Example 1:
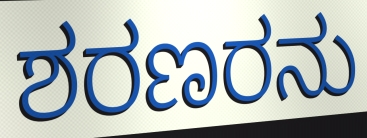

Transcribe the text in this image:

ಶರಣರನು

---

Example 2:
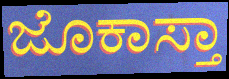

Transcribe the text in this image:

ಜೊಕಾಸ್ತಾ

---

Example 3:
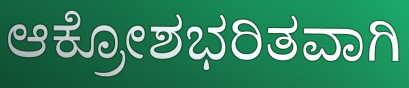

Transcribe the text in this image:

ಆಕ್ರೋಶಭರಿತವಾಗಿ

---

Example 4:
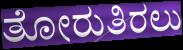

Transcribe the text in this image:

ತೋರುತಿರಲು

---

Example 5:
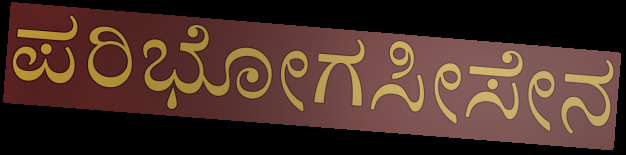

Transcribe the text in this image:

ಪರಿಭೋಗಸೀಸೇನ